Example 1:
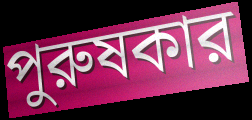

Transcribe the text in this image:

পুরুষকার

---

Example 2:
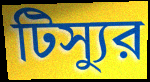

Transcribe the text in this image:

টিস্যুর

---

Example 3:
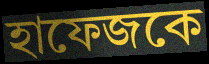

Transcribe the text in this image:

হাফেজকে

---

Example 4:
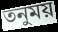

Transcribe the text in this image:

তনুময়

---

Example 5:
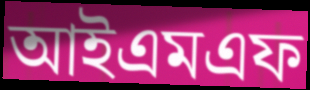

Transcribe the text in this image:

আইএমএফ